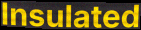
Insulated